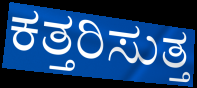
ಕತ್ತರಿಸುತ್ತ